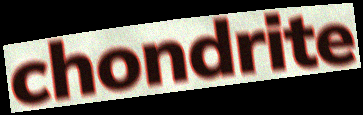
chondrite